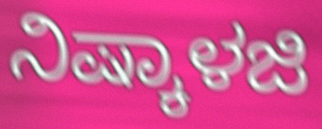
ನಿಷ್ಕಾಳಜಿ